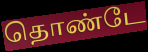
தொண்டே